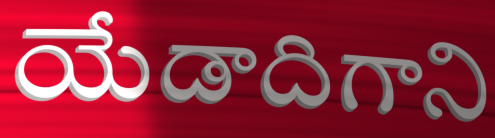
యేడాదిగాని